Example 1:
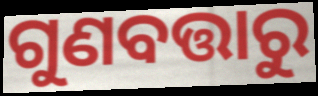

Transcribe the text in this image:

ଗୁଣବତ୍ତାରୁ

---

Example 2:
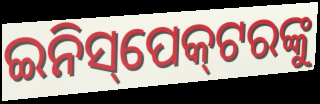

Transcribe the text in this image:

ଇନିସ୍‌ପେକ୍‌ଟରଙ୍କୁ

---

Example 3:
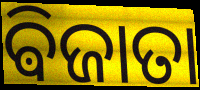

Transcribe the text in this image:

ଵିଜାତା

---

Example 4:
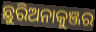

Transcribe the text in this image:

ଛୁରିଅନାକୁଞ୍ଜର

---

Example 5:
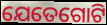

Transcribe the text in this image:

ଯେତେଗୋଟି